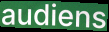
audiens